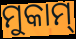
ମୁକାମ୍